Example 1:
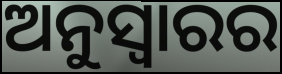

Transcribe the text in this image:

ଅନୁସ୍ଵାରର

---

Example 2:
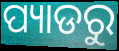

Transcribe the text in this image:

ପ୍ୟାଡରୁ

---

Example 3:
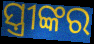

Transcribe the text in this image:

ସ୍ତ୍ରୀଙ୍କର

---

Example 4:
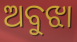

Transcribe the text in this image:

ଅବୁଝା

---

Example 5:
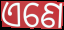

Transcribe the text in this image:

ଏଣେ